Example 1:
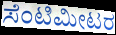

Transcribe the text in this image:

ಸೆಂಟಿಮೀಟರ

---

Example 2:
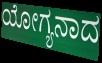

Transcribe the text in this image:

ಯೋಗ್ಯನಾದ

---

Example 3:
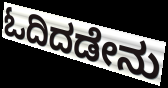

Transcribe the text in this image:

ಓದಿದಡೇನು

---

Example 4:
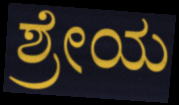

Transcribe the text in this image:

ಶ್ರೇಯ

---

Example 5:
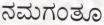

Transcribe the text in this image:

ನಮಗಂತೂ